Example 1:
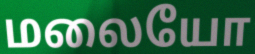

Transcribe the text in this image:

மலையோ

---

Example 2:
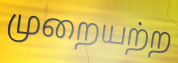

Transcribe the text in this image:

முறையற்ற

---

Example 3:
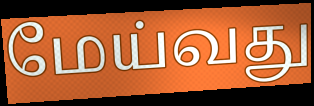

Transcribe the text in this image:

மேய்வது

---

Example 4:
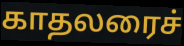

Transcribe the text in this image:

காதலரைச்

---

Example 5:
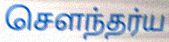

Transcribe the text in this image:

செளந்தர்ய